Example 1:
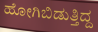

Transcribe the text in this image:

ಹೋಗಿಬಿಡುತ್ತಿದ್ದ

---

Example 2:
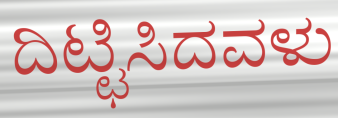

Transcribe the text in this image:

ದಿಟ್ಟಿಸಿದವಳು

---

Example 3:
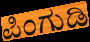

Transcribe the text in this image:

ಪಿಂಗುಡಿ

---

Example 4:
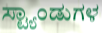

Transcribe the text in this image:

ಸ್ಟ್ಯಾಂಡುಗಳ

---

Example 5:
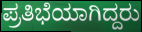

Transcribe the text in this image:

ಪ್ರತಿಭೆಯಾಗಿದ್ದರು